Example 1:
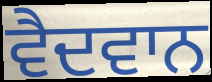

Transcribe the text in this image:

ਵੈਦਵਾਨ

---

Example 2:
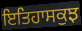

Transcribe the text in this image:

ਇਤਿਹਾਸਕੁਝ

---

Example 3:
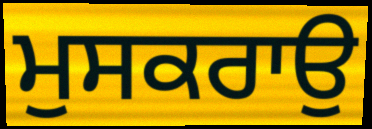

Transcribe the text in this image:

ਮੁਸਕਰਾਉ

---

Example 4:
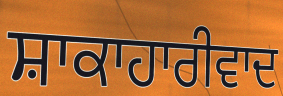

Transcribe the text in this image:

ਸ਼ਾਕਾਹਾਰੀਵਾਦ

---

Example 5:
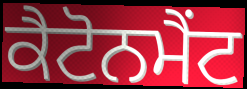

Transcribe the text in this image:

ਕੈਟੋਨਮੈਂਟ